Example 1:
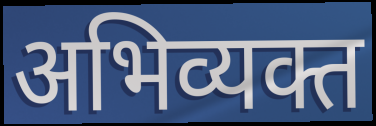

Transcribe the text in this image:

अभिव्यक्त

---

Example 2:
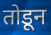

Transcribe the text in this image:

तोडून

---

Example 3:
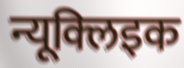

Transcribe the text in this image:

न्यूक्‍लिइक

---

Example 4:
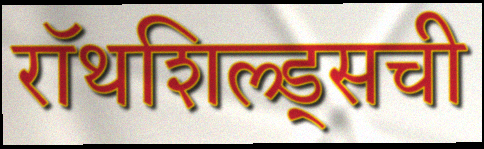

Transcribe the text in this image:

रॉथशिल्ड्सची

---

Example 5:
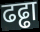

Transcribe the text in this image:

ढढ्ढा